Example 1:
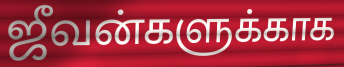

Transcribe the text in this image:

ஜீவன்களுக்காக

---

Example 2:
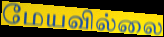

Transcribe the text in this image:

மேயவில்லை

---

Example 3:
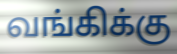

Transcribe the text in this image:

வங்கிக்கு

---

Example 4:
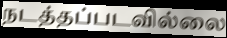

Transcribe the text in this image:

நடத்தப்படவில்லை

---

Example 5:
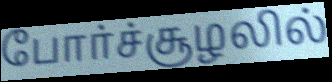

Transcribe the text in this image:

போர்ச்சூழலில்